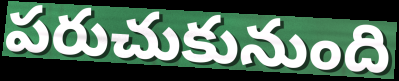
పరుచుకునుంది